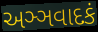
અઞ્ઞવાદકં